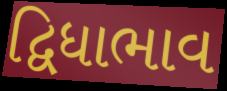
દ્વિધાભાવ